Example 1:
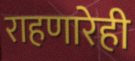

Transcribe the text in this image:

राहणारेही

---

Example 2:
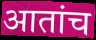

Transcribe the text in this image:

आतांच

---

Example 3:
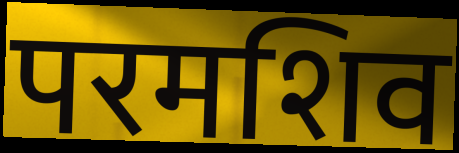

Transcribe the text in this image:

परमशिव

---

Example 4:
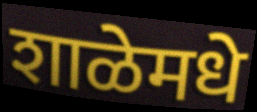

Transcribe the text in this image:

शाळेमधे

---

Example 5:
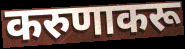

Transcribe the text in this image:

करुणाकरू